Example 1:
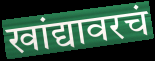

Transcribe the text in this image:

खांद्यावरचं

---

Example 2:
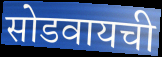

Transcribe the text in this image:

सोडवायची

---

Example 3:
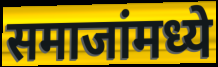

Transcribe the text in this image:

समाजांमध्ये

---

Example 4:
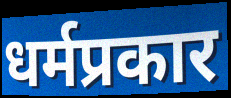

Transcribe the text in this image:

धर्मप्रकार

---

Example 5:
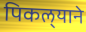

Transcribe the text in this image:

पिकल्याने